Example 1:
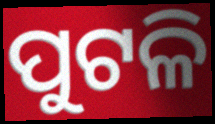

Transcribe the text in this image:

ପୁଟଳି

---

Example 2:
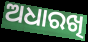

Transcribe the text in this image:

ଅଧାରଖି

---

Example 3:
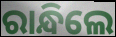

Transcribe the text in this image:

ରାନ୍ଧିଲେ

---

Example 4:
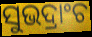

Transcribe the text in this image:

ସୁଭଦ୍ରାଂଚ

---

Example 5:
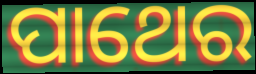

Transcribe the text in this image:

ପାଥେର